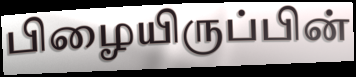
பிழையிருப்பின்